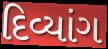
દિવ્યાંગ